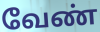
வேண்